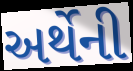
અર્થેની